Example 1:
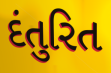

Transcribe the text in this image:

દંતુરિત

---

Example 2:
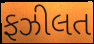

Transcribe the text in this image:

ફઝીલત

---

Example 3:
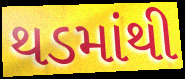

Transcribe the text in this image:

થડમાંથી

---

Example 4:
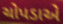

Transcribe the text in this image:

ચોપડાએ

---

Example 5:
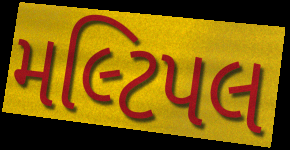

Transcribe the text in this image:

મલ્ટિપલ